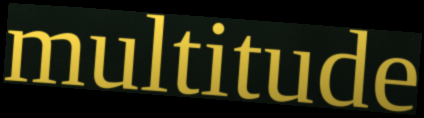
multitude